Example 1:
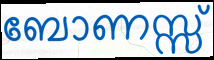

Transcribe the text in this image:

ബോണസ്സ്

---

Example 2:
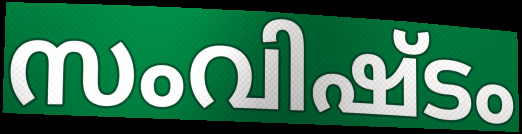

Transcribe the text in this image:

സംവിഷ്ടം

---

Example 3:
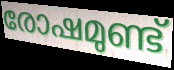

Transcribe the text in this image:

രോഷമുണ്ട്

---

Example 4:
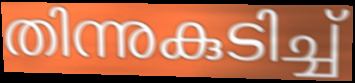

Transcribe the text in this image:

തിന്നുകുടിച്ച്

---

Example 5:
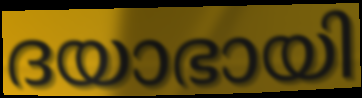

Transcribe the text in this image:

ദയാഭായി